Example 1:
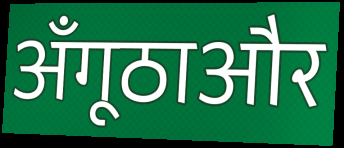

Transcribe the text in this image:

अँगूठाऔर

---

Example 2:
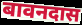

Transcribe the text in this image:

बावनदास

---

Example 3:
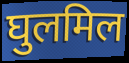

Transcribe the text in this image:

घुलमिल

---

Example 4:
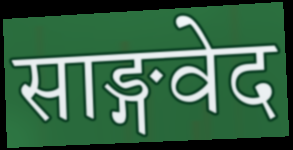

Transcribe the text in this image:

साङ्गवेद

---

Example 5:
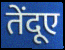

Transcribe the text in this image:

तेंदूए